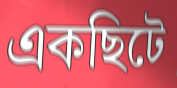
একছিটে